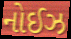
નોઈઝ